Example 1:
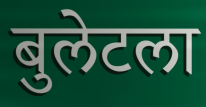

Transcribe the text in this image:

बुलेटला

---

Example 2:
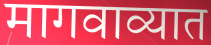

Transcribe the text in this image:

मागवाव्यात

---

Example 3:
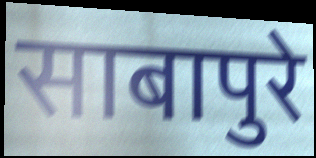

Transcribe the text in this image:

साबापुरे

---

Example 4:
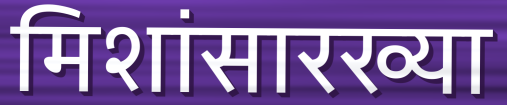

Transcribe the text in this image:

मिशांसारख्या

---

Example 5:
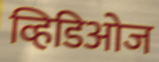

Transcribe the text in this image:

व्हिडिओज